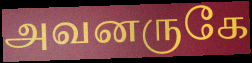
அவனருகே